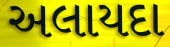
અલાયદા